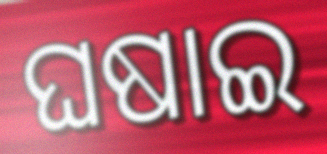
ଘଷାଇ